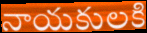
నాయకులకి